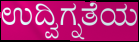
ಉದ್ವಿಗ್ನತೆಯ